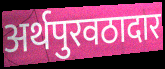
अर्थपुरवठादार